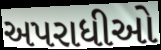
અપરાધીઓ